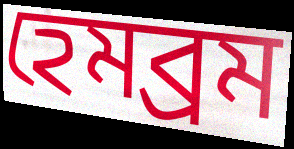
হেমব্রম